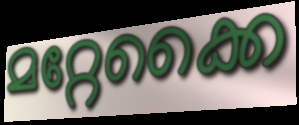
മറ്റേക്കൈ